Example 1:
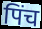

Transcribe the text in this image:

पिंच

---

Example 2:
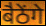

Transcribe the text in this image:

बैठेंगे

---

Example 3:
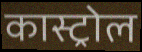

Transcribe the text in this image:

कास्ट्रोल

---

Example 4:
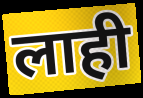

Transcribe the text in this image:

लाही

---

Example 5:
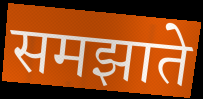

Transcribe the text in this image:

समझाते